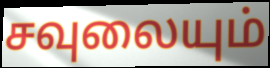
சவுலையும்